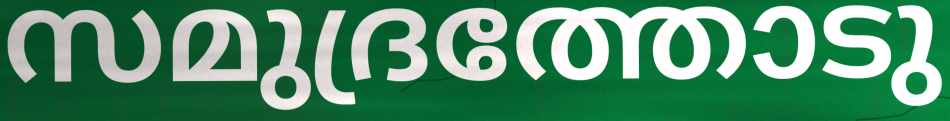
സമുദ്രത്തോടു